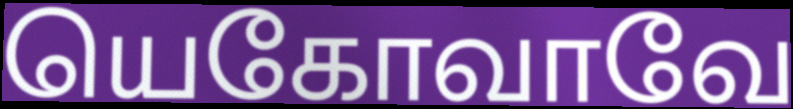
யெகோவாவே